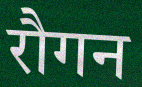
रौगन